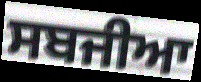
ਸਬਜੀਆ